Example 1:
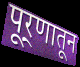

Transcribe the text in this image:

पूर्णातून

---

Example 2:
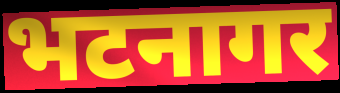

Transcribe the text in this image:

भटनागर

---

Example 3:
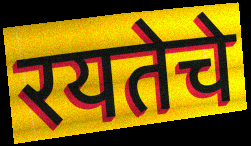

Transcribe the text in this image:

रयतेचे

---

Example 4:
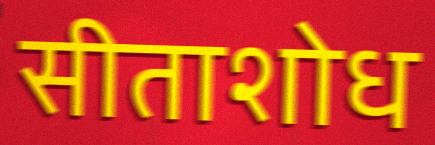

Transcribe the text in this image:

सीताशोध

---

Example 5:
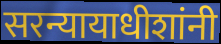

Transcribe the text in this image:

सरन्यायाधीशांनी